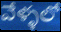
వేళ్ళలో